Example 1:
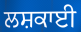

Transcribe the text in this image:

ਲਸ਼ਕਾਈ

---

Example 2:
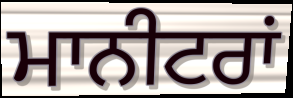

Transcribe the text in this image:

ਮਾਨੀਟਰਾਂ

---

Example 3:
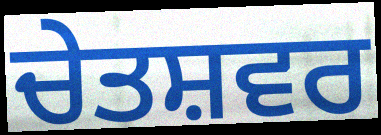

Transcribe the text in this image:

ਚੇਤਸ਼ਵਰ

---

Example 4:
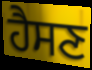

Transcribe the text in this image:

ਹੈਸਣ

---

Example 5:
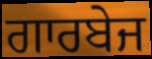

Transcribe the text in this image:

ਗਾਰਬੇਜ